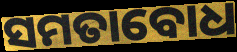
ସମତାବୋଧ